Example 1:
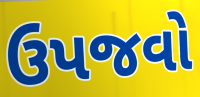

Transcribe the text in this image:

ઉપજવો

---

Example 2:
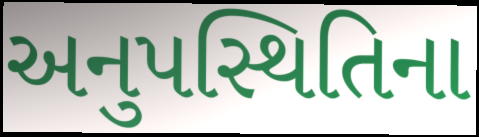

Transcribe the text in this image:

અનુપસ્થિતિના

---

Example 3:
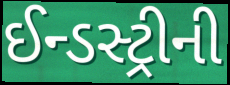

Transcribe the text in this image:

ઈન્ડસ્ટ્રીની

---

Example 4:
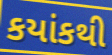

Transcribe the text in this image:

કયાંકથી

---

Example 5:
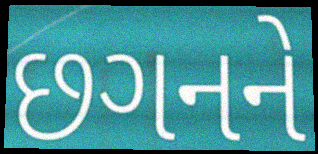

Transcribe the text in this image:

છગનને